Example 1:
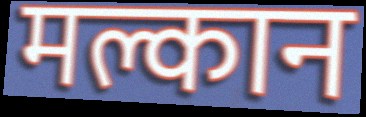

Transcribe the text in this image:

मल्कान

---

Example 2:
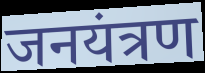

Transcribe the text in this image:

जनयंत्रण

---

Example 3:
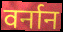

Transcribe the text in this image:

वर्नान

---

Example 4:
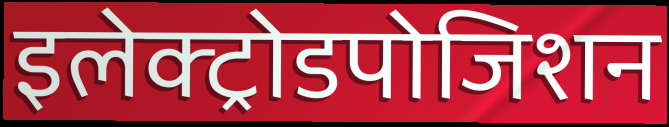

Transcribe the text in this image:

इलेक्ट्रोडपोजिशन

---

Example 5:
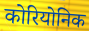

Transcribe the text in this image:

कोरियोनिक